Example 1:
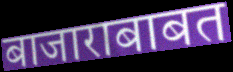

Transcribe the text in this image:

बाजाराबाबत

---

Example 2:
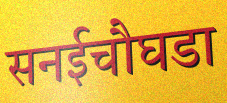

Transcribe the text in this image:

सनईचौघडा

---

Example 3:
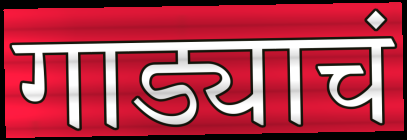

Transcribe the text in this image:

गाड्याचं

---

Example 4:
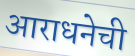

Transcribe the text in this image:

आराधनेची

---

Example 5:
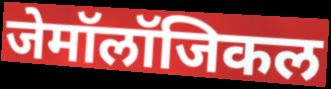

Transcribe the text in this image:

जेमॉलॉजिकल